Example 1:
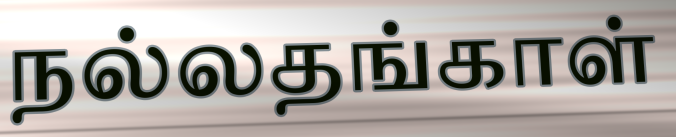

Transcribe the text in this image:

நல்லதங்காள்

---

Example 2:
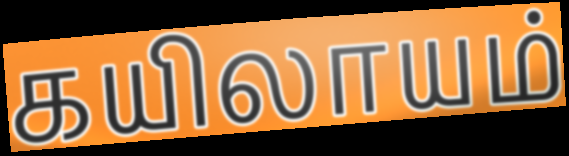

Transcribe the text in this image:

கயிலாயம்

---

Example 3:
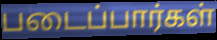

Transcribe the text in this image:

படைப்பார்கள்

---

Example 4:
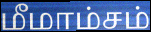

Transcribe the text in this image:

மீமாம்சம்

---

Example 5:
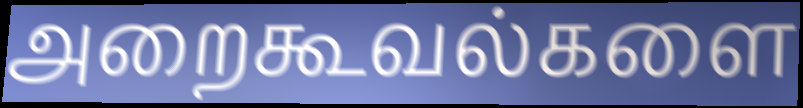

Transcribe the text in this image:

அறைகூவல்களை